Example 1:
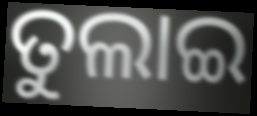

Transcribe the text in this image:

ତୁଲାଇ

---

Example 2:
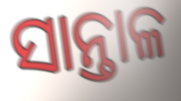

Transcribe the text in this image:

ସାନ୍ତାଳ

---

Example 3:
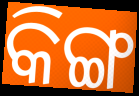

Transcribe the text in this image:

କିଙ୍ଗ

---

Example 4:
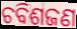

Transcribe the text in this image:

ଚବିଶଜଣ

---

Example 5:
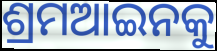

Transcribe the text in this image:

ଶ୍ରମଆଇନକୁ